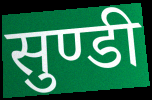
सुण्डी